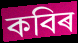
কবিৰ